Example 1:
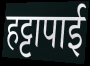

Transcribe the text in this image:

हट्टापाई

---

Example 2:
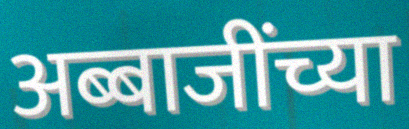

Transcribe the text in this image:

अब्बाजींच्या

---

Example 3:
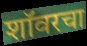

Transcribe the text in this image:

शॉवरचा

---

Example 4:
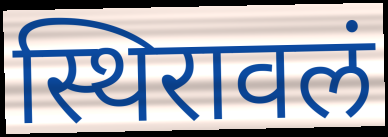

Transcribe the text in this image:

स्थिरावलं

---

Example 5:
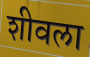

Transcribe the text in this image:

शीवला